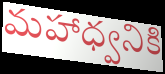
మహాధ్వనికి